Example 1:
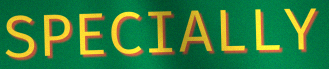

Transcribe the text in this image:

SPECIALLY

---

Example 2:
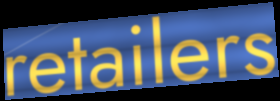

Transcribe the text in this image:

retailers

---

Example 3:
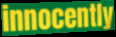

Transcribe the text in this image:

innocently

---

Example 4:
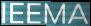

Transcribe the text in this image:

IEEMA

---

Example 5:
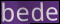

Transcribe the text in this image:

bede